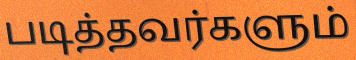
படித்தவர்களும்